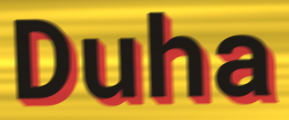
Duha